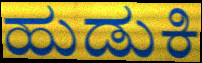
ಹುಡುಕಿ